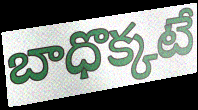
బాధొక్కటే